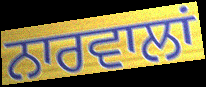
ਨਾਰਵਾਲਾਂ